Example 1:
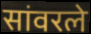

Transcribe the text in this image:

सांवरले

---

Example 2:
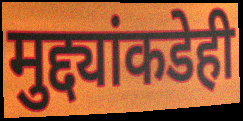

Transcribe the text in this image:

मुद्द्यांकडेही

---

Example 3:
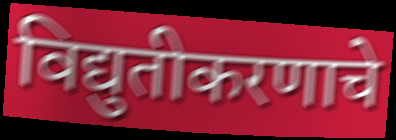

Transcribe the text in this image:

विद्युतीकरणाचे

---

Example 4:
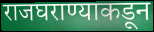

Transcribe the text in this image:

राजघराण्याकडून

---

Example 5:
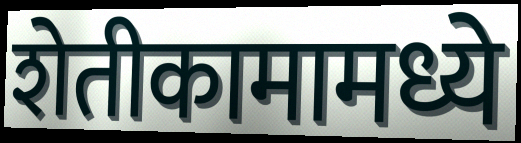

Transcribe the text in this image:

शेतीकामामध्ये